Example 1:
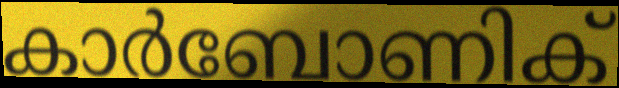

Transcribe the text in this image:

കാർബോണിക്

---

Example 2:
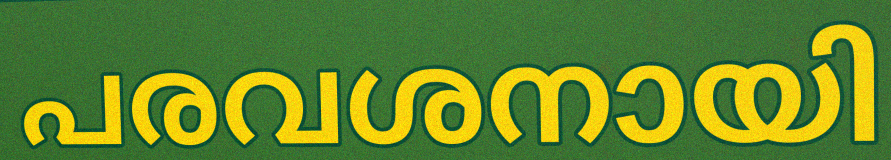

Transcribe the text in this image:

പരവശനായി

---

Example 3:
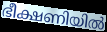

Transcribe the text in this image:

ഭീക്ഷണിയിൽ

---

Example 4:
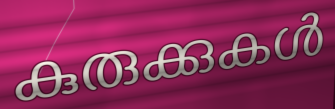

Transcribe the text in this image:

കുരുക്കുകൾ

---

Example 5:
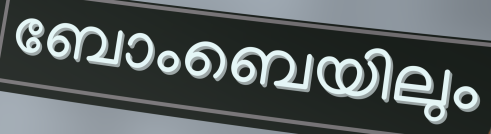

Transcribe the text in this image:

ബോംബെയിലും